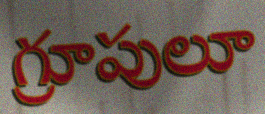
గ్రూపులూ